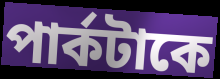
পার্কটাকে